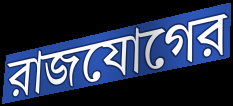
রাজযোগের